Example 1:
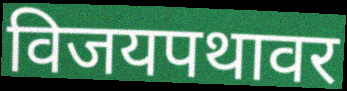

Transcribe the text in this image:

विजयपथावर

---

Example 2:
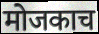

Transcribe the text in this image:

मोजकाच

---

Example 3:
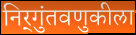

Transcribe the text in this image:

निर्गुंतवणुकीला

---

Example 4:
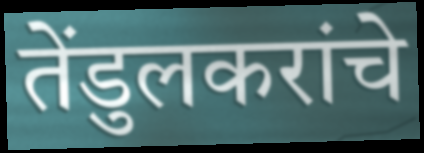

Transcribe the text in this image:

तेंडुलकरांचे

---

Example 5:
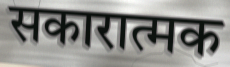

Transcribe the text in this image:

सकारात्‍मक